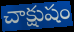
చాక్షుషం